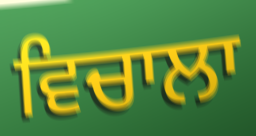
ਵਿਚਾਲਾ